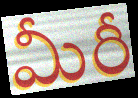
మీరీ